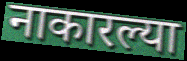
नाकारल्या